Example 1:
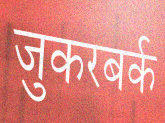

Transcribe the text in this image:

जुकरबर्क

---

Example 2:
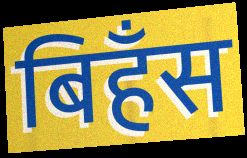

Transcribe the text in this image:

बिहँस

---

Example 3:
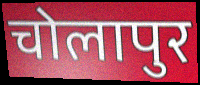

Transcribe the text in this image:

चोलापुर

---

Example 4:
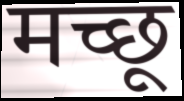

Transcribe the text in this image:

मच्छू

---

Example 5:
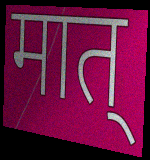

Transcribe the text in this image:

मात्